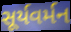
સૂર્યવર્મન